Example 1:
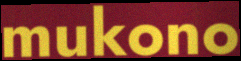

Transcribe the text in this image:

mukono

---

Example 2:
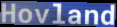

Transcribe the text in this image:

Hovland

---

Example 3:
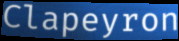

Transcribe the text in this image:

Clapeyron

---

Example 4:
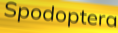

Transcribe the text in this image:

Spodoptera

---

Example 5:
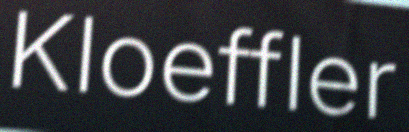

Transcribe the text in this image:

Kloeffler